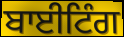
ਬਾਈਟਿੰਗ